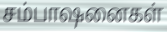
சம்பாஷனைகள்